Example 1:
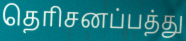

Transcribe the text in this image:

தெரிசனப்பத்து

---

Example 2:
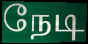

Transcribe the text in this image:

நேடி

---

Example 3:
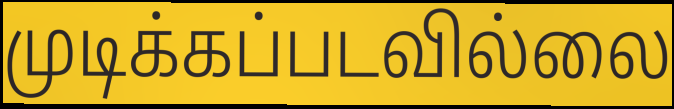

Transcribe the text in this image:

முடிக்கப்படவில்லை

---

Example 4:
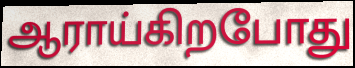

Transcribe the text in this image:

ஆராய்கிறபோது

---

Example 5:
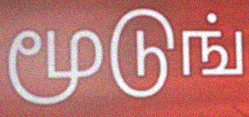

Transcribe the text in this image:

மூடுங்